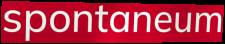
spontaneum